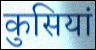
कुसियां